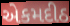
એકમદીઠ